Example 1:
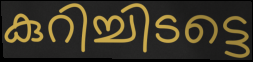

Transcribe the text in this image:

കുറിച്ചിടട്ടെ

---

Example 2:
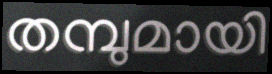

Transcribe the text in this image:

തമ്പുമായി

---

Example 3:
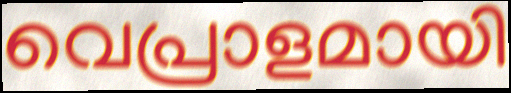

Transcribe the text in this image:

വെപ്രാളമായി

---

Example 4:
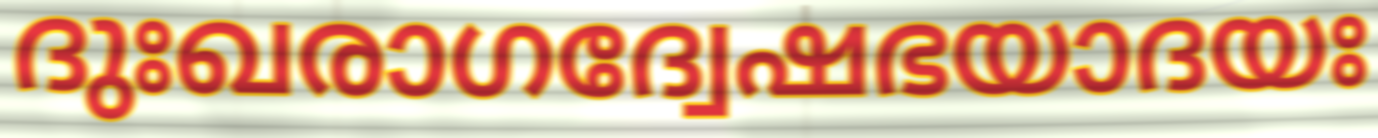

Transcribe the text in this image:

ദുഃഖരാഗദ്വേഷഭയാദയഃ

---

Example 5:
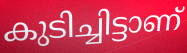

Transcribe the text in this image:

കുടിച്ചിട്ടാണ്